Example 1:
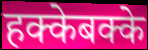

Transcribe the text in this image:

हक्केबक्के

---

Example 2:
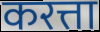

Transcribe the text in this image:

करत्ता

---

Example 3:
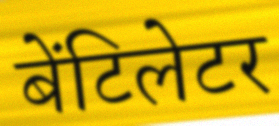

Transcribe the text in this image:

बेंटिलेटर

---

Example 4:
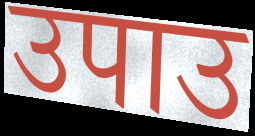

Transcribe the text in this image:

उपाउ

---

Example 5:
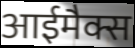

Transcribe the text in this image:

आईमैक्स